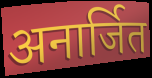
अनार्जित